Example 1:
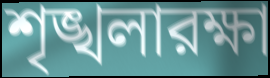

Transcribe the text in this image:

শৃঙ্খলারক্ষা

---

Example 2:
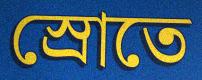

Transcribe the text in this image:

স্রোতে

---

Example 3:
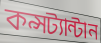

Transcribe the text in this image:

কন্সট্যান্টান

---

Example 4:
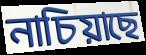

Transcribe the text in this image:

নাচিয়াছে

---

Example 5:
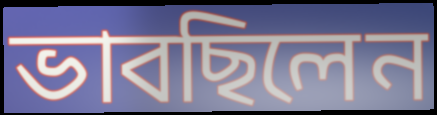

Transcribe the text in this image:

ভাবছিলেন